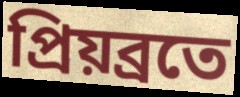
প্ৰিয়ব্ৰতে